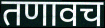
तणावच